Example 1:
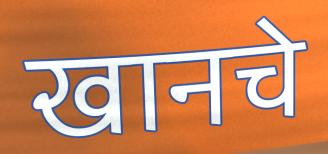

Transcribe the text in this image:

खानचे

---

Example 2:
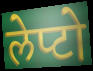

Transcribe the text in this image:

लेप्टो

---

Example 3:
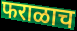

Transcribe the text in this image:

फराळाच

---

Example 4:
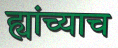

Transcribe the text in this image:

ह्यांच्याच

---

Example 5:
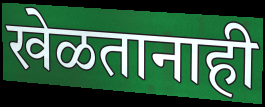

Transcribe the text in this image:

खेळतानाही